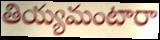
తియ్యమంటారా